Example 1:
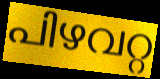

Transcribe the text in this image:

പിഴവറ്റ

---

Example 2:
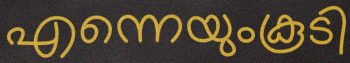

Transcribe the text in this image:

എന്നെയുംകൂടി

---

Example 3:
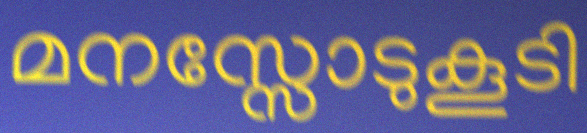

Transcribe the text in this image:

മനസ്സോടുകൂടി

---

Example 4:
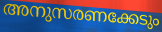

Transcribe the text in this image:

അനുസരണക്കേടും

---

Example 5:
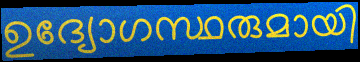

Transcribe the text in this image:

ഉദ്യോഗസ്ഥരുമായി